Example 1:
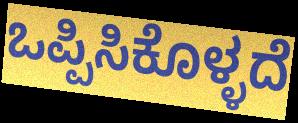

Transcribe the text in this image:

ಒಪ್ಪಿಸಿಕೊಳ್ಳದೆ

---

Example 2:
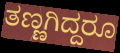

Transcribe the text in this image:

ತಣ್ಣಗಿದ್ದರೂ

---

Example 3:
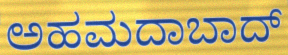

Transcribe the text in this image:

ಅಹಮದಾಬಾದ್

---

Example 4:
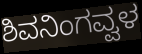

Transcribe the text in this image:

ಶಿವನಿಂಗವ್ವಳ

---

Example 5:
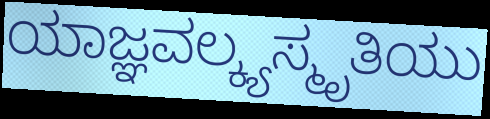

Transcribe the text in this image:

ಯಾಜ್ಞವಲ್ಕ್ಯಸ್ಮೃತಿಯು